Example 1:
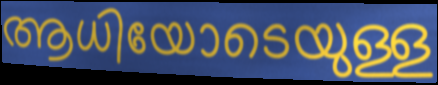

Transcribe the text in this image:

ആധിയോടെയുള്ള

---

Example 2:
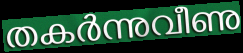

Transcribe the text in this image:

തകർന്നുവീണു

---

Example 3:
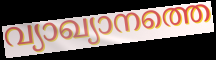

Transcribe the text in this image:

വ്യാഖ്യാനത്തെ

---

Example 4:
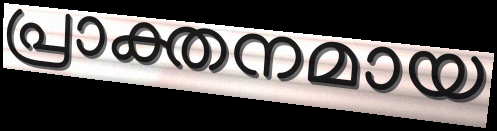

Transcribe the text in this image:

പ്രാക്തനമായ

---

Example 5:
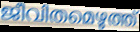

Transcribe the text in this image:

ജീവിതമെഴുത്ത്